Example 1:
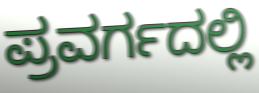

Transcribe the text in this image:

ಪ್ರವರ್ಗದಲ್ಲಿ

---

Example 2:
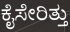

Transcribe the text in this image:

ಕೈಸೇರಿತ್ತು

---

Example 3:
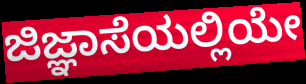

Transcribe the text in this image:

ಜಿಜ್ಞಾಸೆಯಲ್ಲಿಯೇ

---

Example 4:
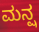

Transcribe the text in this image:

ಮನ್ಷ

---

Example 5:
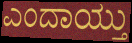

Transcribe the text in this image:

ಎಂದಾಯ್ತು